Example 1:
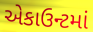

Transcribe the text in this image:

એકાઉન્ટમાં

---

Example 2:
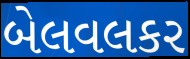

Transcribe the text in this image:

બેલવલકર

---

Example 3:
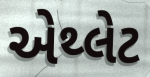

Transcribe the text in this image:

એથ્લેટ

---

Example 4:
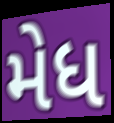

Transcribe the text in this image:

મેધ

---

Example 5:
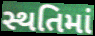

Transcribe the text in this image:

સ્થતિમાં